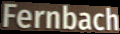
Fernbach